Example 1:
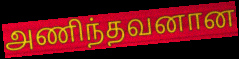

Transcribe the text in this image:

அணிந்தவனான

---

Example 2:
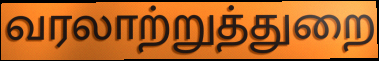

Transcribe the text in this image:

வரலாற்றுத்துறை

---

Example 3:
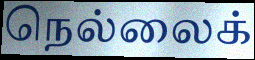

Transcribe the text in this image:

நெல்லைக்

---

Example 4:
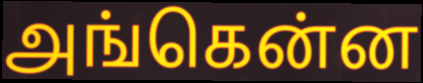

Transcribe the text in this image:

அங்கென்ன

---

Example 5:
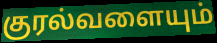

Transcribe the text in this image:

குரல்வளையும்